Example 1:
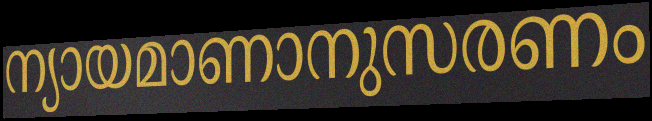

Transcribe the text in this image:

ന്യായമാണാനുസരണം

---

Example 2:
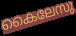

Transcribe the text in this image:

കൈലേസു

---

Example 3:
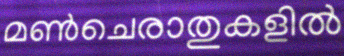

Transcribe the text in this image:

മൺചെരാതുകളിൽ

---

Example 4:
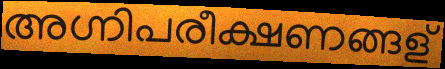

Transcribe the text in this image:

അഗ്നിപരീക്ഷണങ്ങള്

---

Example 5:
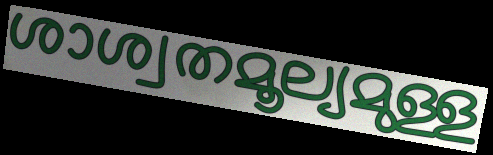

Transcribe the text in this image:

ശാശ്വതമൂല്യമുള്ള